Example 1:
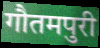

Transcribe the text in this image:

गौतमपुरी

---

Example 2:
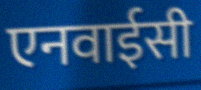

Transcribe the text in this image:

एनवाईसी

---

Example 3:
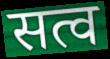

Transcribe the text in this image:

सत्व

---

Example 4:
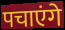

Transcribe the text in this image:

पचाएंगे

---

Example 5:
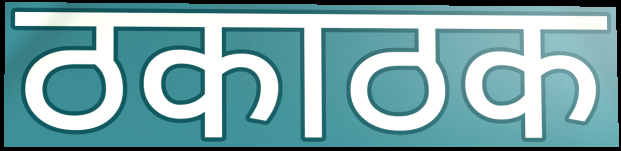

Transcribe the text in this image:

ठकाठक